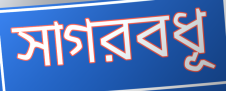
সাগরবধূ